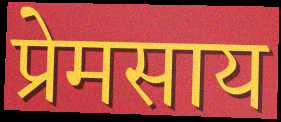
प्रेमसाय